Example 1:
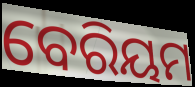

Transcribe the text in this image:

ବେରିୟମ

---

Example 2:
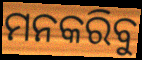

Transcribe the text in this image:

ମନକରିବୁ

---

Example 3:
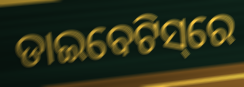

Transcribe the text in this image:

ଡାଇବେଟିସ୍‌ରେ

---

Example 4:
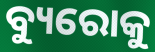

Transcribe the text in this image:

ବ୍ୟୁରୋକୁ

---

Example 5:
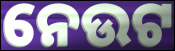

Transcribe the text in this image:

ନେଉଟ